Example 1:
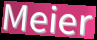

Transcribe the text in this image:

Meier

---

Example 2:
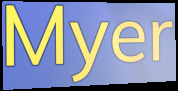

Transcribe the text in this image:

Myer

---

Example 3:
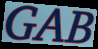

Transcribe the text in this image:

GAB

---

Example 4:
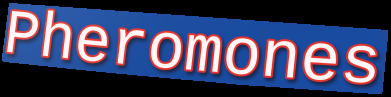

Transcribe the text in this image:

Pheromones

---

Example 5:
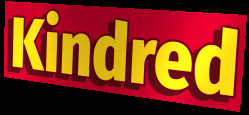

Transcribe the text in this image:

Kindred